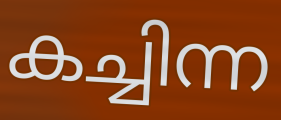
കച്ചിന്ന